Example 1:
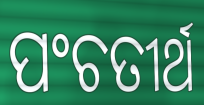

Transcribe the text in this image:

ପଂଚତୀର୍ଥ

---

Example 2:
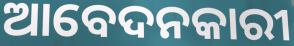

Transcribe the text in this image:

ଆବେଦନକାରୀ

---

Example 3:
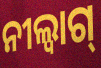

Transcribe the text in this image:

ନୀଲ୍ବାଗ୍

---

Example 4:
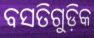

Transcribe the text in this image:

ବସତିଗୁଡ଼ିକ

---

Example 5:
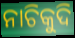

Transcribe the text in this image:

ନାଚିକୁଦି